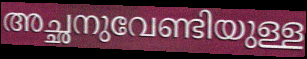
അച്ഛനുവേണ്ടിയുള്ള